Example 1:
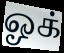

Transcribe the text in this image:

ஓக்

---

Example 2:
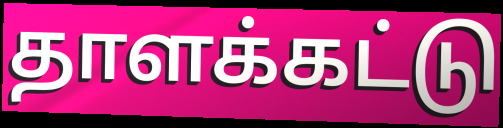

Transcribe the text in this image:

தாளக்கட்டு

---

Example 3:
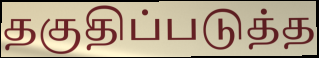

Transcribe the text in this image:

தகுதிப்படுத்த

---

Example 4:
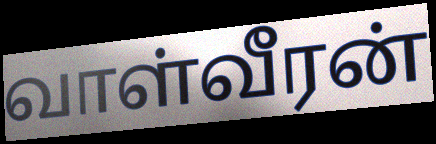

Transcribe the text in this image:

வாள்வீரன்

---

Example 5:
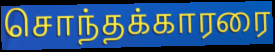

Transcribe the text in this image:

சொந்தக்காரரை